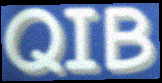
QIB